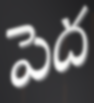
పెద